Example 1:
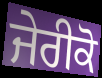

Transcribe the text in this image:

ਜੇਰੀਕੋ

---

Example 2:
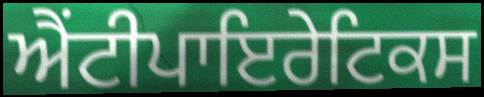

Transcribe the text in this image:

ਐਂਟੀਪਾਇਰੇਟਿਕਸ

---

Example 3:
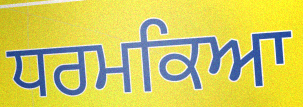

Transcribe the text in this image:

ਧਰਮਕਿਆ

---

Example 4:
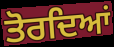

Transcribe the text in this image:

ਤੋਰਦਿਆਂ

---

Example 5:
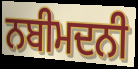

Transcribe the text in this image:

ਨਬੀਮਦਨੀ